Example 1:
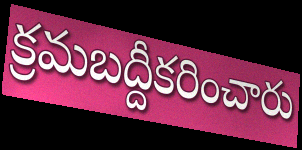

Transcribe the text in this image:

క్రమబద్దీకరించారు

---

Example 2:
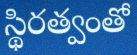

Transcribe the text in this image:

స్థిరత్వంతో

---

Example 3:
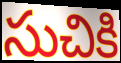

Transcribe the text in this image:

సుచికి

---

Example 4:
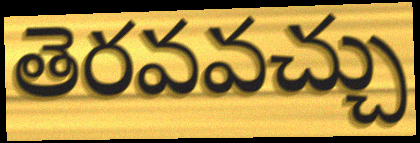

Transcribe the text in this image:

తెరవవచ్చు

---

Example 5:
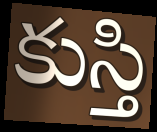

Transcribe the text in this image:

కుస్తి